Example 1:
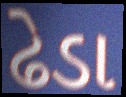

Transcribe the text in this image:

ઢેડા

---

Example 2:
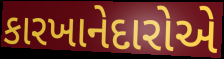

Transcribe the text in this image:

કારખાનેદારોએ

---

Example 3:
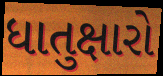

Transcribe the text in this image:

ધાતુક્ષારો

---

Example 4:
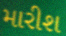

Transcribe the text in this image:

મારીશ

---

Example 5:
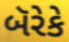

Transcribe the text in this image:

બૅરેકે